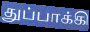
துப்பாக்கி